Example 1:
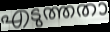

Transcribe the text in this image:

എടുത്തതാ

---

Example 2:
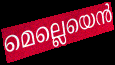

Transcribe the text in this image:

മെല്ലെയെൻ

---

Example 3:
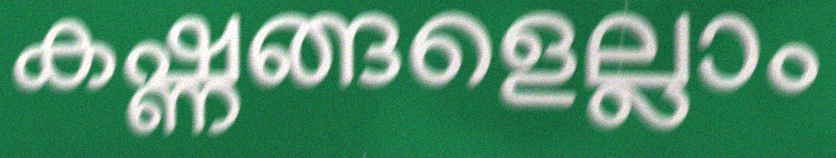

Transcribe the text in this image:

കഷ്ണങ്ങളെല്ലാം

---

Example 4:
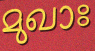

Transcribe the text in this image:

മുഖാഃ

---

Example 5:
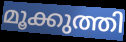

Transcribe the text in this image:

മൂക്കുത്തി